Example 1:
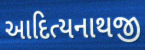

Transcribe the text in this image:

આદિત્યનાથજી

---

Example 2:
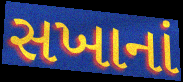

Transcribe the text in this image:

સખાનાં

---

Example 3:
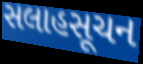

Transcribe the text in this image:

સલાહસૂચન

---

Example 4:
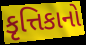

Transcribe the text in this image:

કૃત્તિકાનો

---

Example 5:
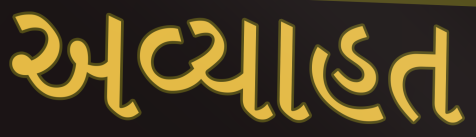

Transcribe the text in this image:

અવ્યાહત